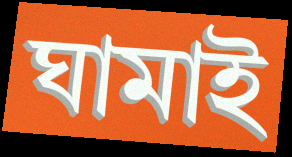
ঘামাই